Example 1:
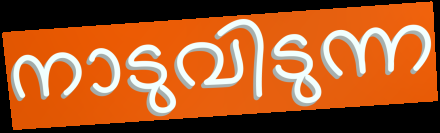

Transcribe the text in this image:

നാടുവിടുന്ന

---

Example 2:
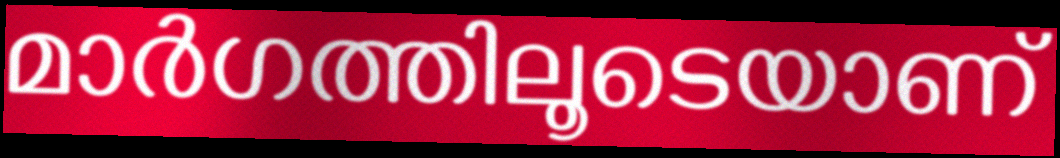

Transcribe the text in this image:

മാർഗത്തിലൂടെയാണ്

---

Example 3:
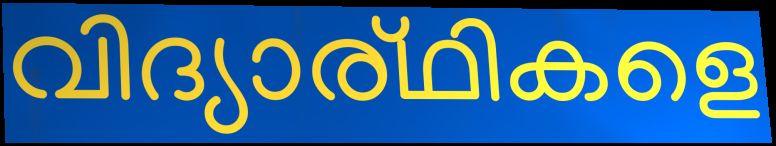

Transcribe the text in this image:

വിദ്യാര്ഥികളെ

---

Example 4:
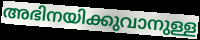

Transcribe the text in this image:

അഭിനയിക്കുവാനുള്ള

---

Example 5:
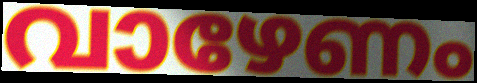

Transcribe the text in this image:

വാഴേണം